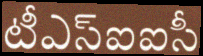
టీఎస్ఐఐసీ